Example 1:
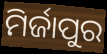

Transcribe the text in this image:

ମିର୍ଜାପୁର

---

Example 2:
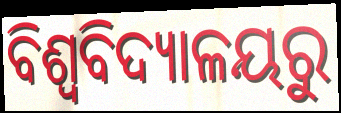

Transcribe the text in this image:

ବିଶ୍ୱବିଦ୍ୟାଳୟରୁ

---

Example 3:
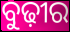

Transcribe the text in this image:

ବୁଢ଼ୀର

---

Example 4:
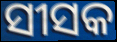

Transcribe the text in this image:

ସୀସକ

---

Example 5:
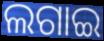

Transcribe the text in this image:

ଲଗାଇ